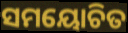
ସମୟୋଚିତ